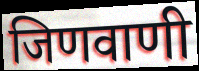
जिणवाणी